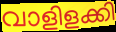
വാളിളക്കി